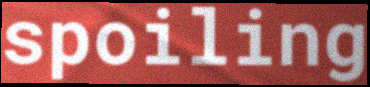
spoiling